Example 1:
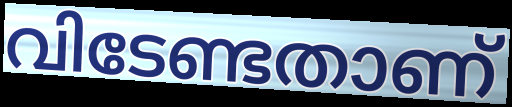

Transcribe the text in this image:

വിടേണ്ടതാണ്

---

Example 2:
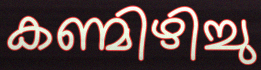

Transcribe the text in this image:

കണ്മിഴിച്ചു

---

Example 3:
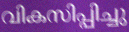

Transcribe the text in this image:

വികസിപ്പിച്ചു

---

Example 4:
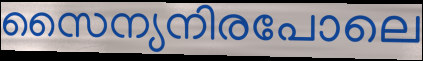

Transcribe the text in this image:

സൈന്യനിരപോലെ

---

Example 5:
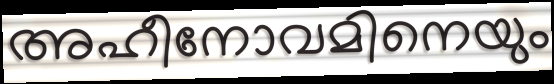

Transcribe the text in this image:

അഹീനോവമിനെയും